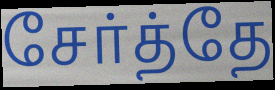
சேர்த்தே